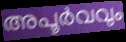
അപൂർവവും